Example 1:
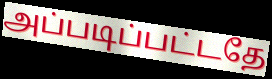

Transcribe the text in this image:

அப்படிப்பட்டதே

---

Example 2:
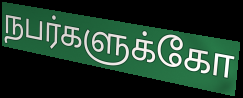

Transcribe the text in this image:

நபர்களுக்கோ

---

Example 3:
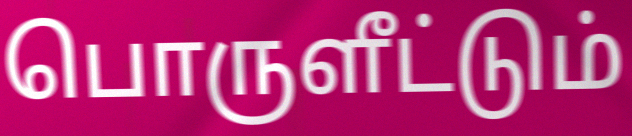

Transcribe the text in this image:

பொருளீட்டும்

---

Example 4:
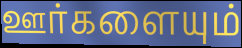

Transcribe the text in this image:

ஊர்களையும்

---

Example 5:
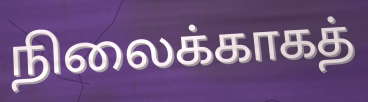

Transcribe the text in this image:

நிலைக்காகத்